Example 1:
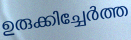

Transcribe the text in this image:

ഉരുക്കിച്ചേർത്ത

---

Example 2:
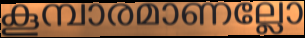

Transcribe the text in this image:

കൂമ്പാരമാണല്ലോ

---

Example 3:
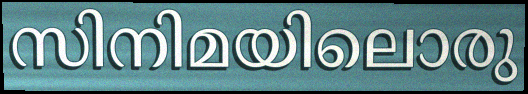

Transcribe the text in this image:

സിനിമയിലൊരു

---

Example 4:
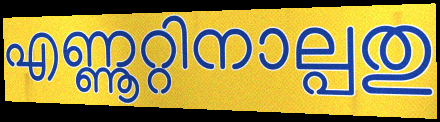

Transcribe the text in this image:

എണ്ണൂറ്റിനാല്പതു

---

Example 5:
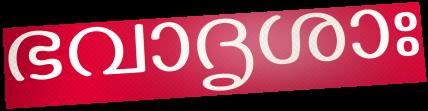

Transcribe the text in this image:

ഭവാദൃശാഃ